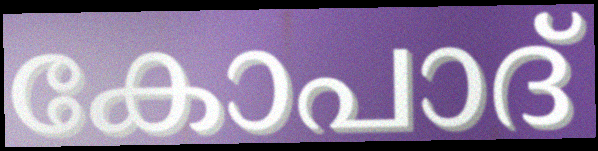
കോപാദ്